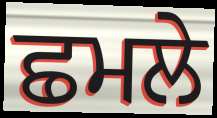
ਛਮਲੇ